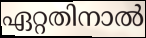
ഏറ്റതിനാൽ